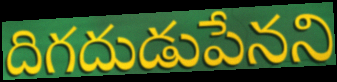
దిగదుడుపేనని